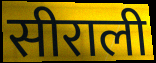
सीराली